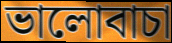
ভালোবাচা